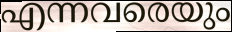
എന്നവരെയും